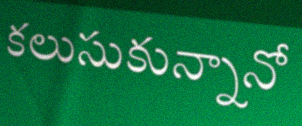
కలుసుకున్నానో